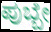
ಪುಬ್ಬೇ